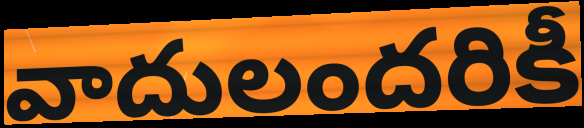
వాదులందరికీ